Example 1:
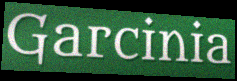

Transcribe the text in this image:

Garcinia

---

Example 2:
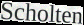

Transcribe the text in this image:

Scholten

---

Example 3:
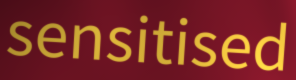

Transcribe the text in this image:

sensitised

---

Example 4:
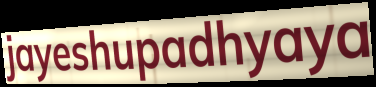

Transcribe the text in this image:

jayeshupadhyaya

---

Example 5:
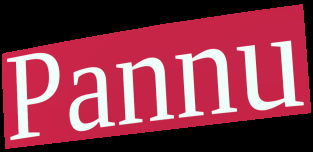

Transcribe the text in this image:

Pannu